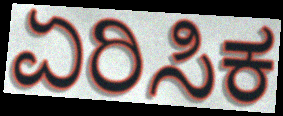
ಏರಿಸಿಕ